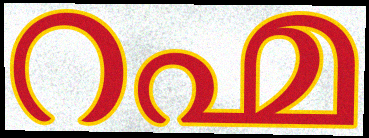
റഹ്മ